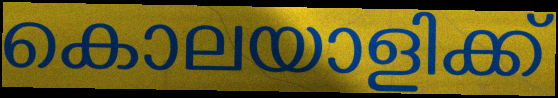
കൊലയാളിക്ക്